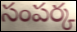
సంపర్క